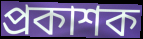
প্ৰকাশক